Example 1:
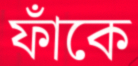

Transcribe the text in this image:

ফাঁকে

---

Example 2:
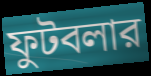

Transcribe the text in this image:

ফুটবলার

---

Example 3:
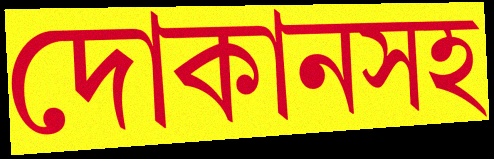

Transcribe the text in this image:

দোকানসহ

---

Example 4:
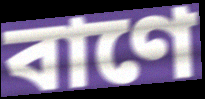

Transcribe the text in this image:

বাণে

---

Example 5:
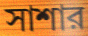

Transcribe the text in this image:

সাশার